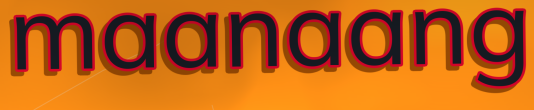
maanaang